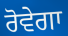
ਰੋਵੇਗਾ